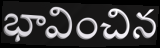
భావించిన